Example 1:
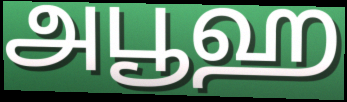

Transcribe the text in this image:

அபூஹ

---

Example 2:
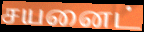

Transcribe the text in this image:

சயனைட்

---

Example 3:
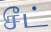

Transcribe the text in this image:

சீட்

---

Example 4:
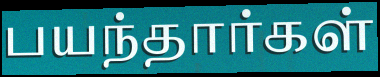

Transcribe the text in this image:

பயந்தார்கள்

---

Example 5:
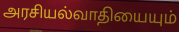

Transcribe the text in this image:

அரசியல்வாதியையும்